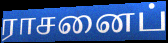
ராசனைப்